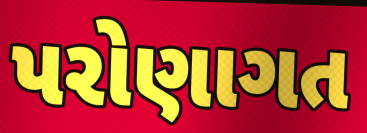
પરોણાગત